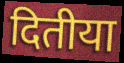
दितीया